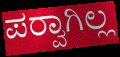
ಪರ‍್ವಾಗಿಲ್ಲ